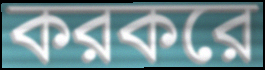
করকরে